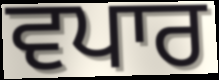
ਵਪਾਰ